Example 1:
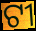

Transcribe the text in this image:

ଟୀ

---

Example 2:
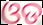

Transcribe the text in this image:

ଓଡ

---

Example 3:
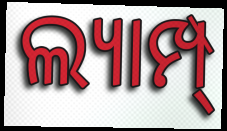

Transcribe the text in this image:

ଲ୍ୟାମ୍ପ୍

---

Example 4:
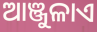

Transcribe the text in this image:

ଆଞ୍ଜୁଳାଏ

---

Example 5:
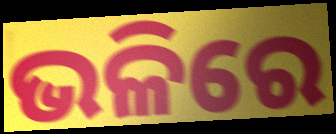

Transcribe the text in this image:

ଭଳିରେ